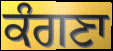
ਕੰਗਣਾ